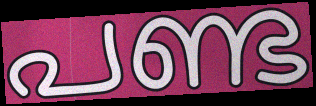
പണ്ട